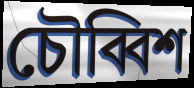
চৌব্বিশ